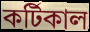
কর্টিকাল